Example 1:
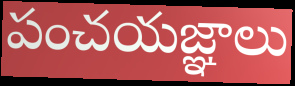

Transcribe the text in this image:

పంచయజ్ఞాలు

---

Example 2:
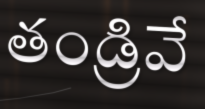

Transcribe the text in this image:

తండ్రివే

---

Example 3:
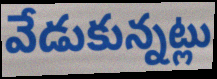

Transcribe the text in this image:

వేడుకున్నట్లు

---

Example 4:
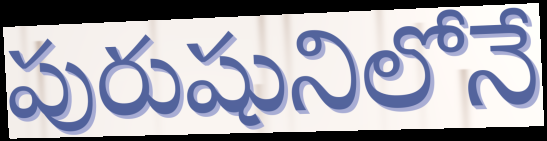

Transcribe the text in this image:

పురుషునిలోనే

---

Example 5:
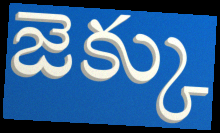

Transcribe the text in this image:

జెక్కు